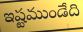
ఇష్టముండేది